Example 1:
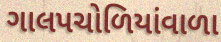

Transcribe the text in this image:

ગાલપચોળિયાંવાળા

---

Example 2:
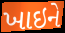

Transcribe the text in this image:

ખાઇને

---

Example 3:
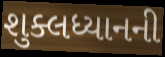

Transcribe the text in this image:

શુક્લધ્યાનની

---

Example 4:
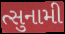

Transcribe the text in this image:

ત્સુનામી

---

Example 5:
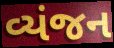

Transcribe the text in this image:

વ્યંજન